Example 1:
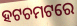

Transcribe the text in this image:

ହଟଚମଟରେ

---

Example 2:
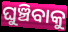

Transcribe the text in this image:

ଘୁଞ୍ଚିବାକୁ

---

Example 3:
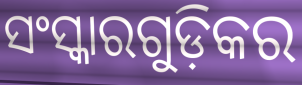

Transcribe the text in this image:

ସଂସ୍କାରଗୁଡ଼ିକର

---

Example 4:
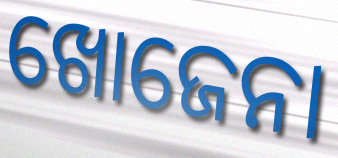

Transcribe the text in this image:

ଖୋଜେନା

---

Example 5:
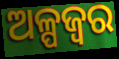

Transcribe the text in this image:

ଅଳ୍ପଜ୍ଵର